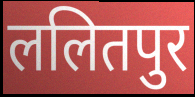
ललितपुर